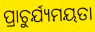
ପ୍ରାଚୁର୍ଯ୍ୟମୟତା